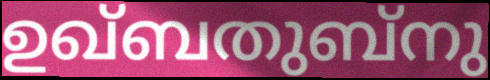
ഉഖ്ബതുബ്നു